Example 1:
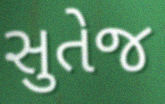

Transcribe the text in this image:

સુતેજ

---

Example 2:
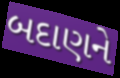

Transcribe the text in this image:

બદાણને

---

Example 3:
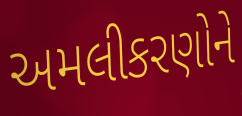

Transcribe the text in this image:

અમલીકરણોને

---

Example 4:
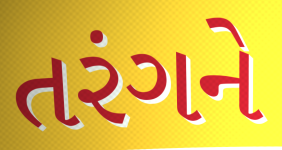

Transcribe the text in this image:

તરંગને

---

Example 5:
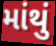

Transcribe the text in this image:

માંથું